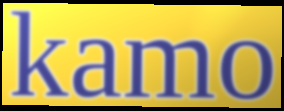
kamo